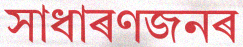
সাধাৰণজনৰ